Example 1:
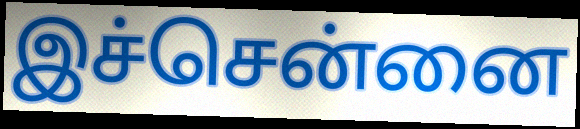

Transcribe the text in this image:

இச்சென்னை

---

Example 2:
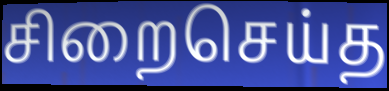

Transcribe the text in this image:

சிறைசெய்த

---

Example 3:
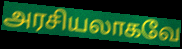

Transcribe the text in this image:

அரசியலாகவே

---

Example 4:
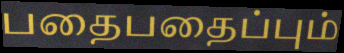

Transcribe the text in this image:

பதைபதைப்பும்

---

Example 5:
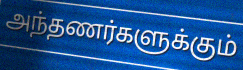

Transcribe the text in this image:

அந்தணர்களுக்கும்